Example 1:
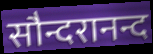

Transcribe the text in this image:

सौन्दरानन्द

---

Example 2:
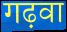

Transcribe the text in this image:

गढ़वा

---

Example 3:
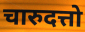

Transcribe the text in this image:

चारुदत्तो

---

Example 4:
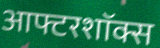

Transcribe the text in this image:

आफ्टरशॉक्स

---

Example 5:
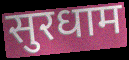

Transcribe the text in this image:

सुरधाम